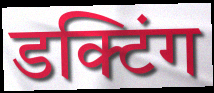
डक्टिंग